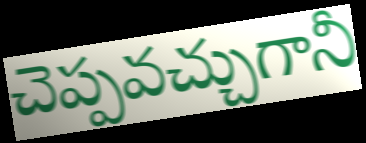
చెప్పవచ్చుగానీ